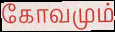
கோவமும்